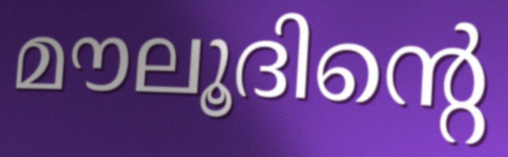
മൗലൂദിന്റെ